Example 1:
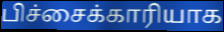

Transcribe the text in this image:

பிச்சைக்காரியாக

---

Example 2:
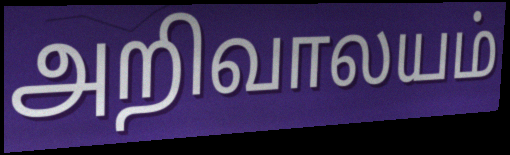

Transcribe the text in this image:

அறிவாலயம்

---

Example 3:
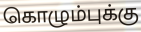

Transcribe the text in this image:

கொழும்புக்கு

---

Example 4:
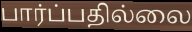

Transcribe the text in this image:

பார்ப்பதில்லை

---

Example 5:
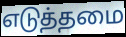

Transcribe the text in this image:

எடுத்தமை